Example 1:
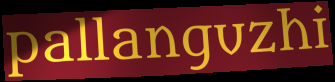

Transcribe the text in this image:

pallanguzhi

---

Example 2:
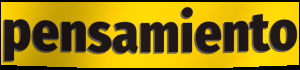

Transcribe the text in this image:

pensamiento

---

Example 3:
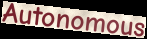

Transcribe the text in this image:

Autonomous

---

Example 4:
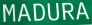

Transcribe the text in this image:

MADURA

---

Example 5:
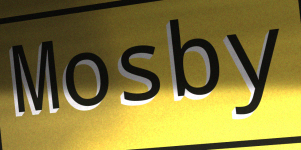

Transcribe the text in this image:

Mosby